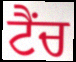
ਟੈਂਚ